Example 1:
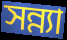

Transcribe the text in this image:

সন্ন্যা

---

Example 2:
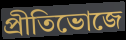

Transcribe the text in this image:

প্রীতিভোজে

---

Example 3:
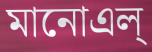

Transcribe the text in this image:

মানোএল্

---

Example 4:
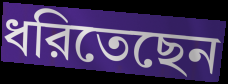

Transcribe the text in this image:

ধরিতেছেন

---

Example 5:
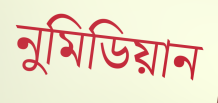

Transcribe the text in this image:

নুমিডিয়ান